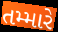
તમ્મારે